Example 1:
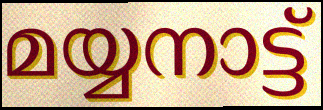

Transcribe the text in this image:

മയ്യനാട്ട്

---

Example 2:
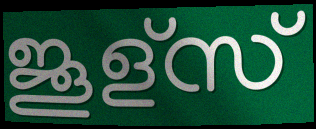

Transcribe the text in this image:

ജൂള്സ്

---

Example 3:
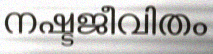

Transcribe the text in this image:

നഷ്ടജീവിതം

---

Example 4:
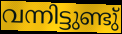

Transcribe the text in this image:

വന്നിട്ടുണ്ടു്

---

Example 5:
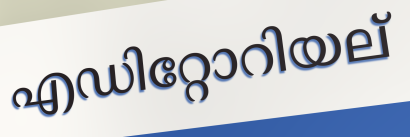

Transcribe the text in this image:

എഡിറ്റോറിയല്